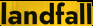
landfall